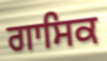
ਗਾਸਿਕ